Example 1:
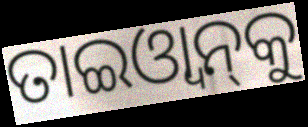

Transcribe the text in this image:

ତାଇଓ୍ବାନ୍‌କୁ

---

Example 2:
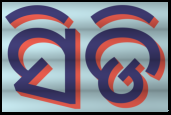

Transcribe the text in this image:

ସିଡି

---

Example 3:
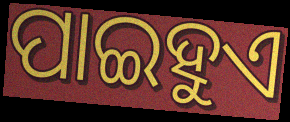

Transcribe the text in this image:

ପାଇହୁଏ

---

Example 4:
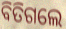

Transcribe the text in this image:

ବିତିଗଲେ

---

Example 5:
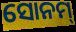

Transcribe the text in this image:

ସୋନମ୍